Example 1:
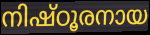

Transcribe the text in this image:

നിഷ്ഠൂരനായ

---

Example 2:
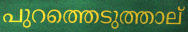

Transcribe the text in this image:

പുറത്തെടുത്താല്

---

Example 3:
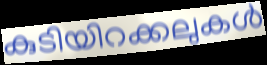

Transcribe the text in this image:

കുടിയിറക്കലുകൾ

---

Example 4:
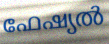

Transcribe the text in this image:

ഫേഷ്യൽ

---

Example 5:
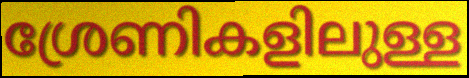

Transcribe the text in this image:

ശ്രേണികളിലുള്ള